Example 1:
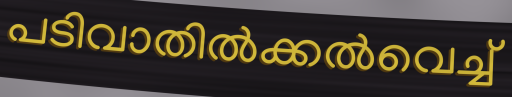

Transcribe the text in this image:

പടിവാതിൽക്കൽവെച്ച്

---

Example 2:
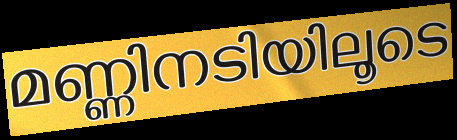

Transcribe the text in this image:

മണ്ണിനടിയിലൂടെ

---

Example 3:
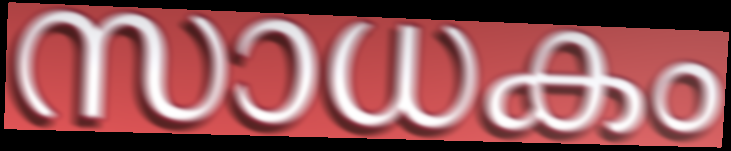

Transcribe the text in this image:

സാധകം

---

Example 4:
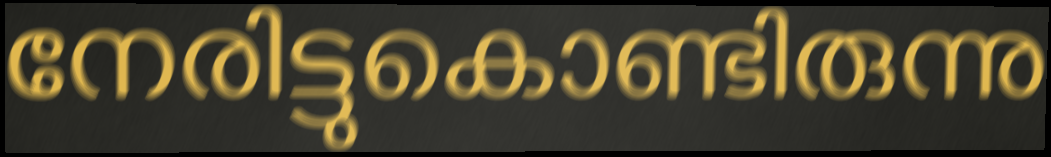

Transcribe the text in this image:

നേരിട്ടുകൊണ്ടിരുന്നു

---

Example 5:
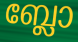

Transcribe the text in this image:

ബ്ലോ